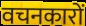
वचनकारों